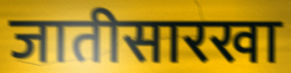
जातीसारखा